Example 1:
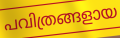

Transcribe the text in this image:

പവിത്രങ്ങളായ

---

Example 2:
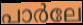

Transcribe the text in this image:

പാർലേ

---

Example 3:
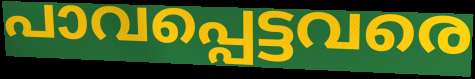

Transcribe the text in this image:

പാവപ്പെട്ടവരെ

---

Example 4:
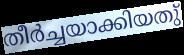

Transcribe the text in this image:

തീർച്ചയാക്കിയതു്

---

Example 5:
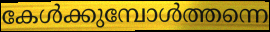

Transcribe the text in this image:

കേൾക്കുമ്പോൾത്തന്നെ